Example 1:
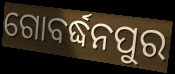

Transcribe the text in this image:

ଗୋବର୍ଦ୍ଧନପୁର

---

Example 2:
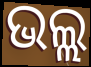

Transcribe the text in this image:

ଭଲ୍ଲ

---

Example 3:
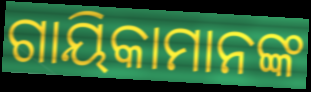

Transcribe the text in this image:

ଗାୟିକାମାନଙ୍କ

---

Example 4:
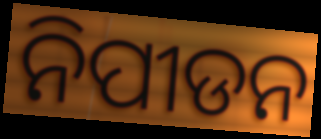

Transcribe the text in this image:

ନିପୀଡନ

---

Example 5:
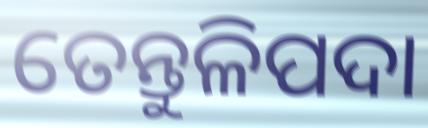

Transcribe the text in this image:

ତେନ୍ତୁଳିପଦା